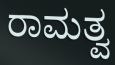
ರಾಮತ್ವ